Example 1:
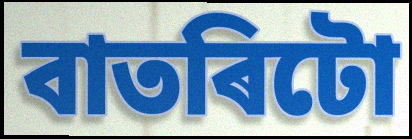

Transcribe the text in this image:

বাতৰিটো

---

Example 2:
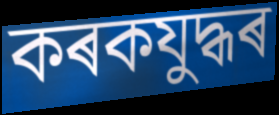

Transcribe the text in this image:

কৰকযুদ্ধৰ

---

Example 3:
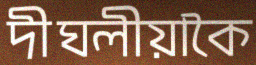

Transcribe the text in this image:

দীঘলীয়াকৈ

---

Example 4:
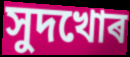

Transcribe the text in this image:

সুদখোৰ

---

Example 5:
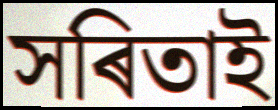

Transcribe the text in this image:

সৰিতাই